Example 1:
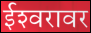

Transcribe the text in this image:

ईश्वरावर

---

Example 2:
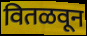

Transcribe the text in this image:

वितळवून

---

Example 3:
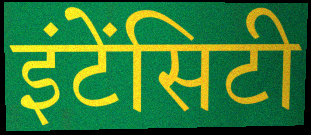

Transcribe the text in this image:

इंटेंसिटी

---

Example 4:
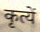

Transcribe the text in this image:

कृत्यें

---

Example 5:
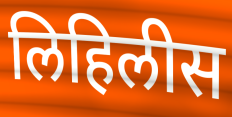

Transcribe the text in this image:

लिहिलीस